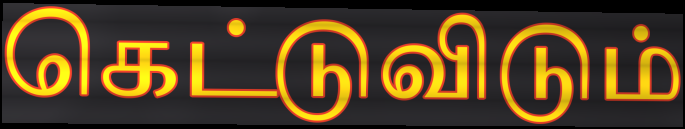
கெட்டுவிடும்